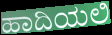
ಹಾದಿಯಲಿ